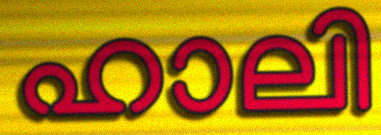
ഹാലി